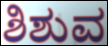
ಶಿಶುವ